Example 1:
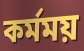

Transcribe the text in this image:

কর্মময়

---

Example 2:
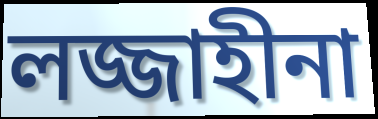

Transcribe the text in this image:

লজ্জাহীনা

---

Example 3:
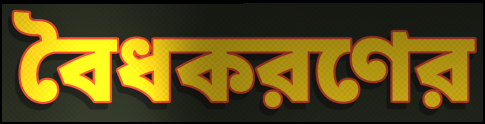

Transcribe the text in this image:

বৈধকরণের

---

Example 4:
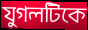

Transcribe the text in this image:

যুগলটিকে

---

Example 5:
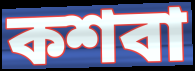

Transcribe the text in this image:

কশবা